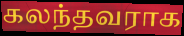
கலந்தவராக